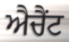
ਐਚੈਂਟ